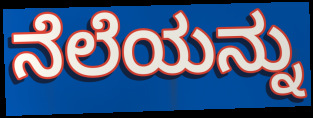
ನೆಲೆಯನ್ನು